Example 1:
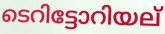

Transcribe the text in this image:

ടെറിട്ടോറിയല്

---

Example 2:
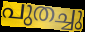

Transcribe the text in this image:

പുതച്ചു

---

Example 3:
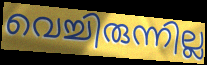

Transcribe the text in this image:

വെച്ചിരുന്നില്ല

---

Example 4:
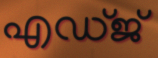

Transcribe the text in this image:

എഡ്ജ്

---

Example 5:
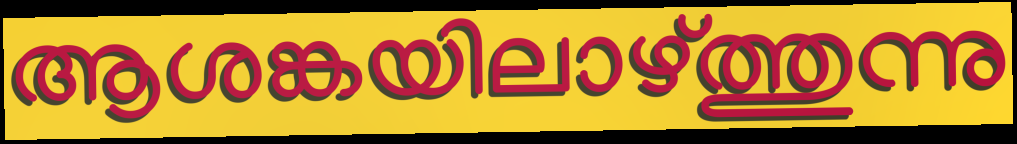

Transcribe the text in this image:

ആശങ്കയിലാഴ്ത്തുന്നു